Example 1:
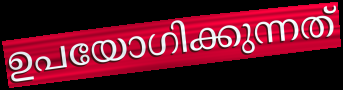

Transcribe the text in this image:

ഉപയോഗിക്കുന്നത്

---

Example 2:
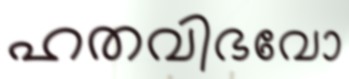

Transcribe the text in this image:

ഹതവിഭവോ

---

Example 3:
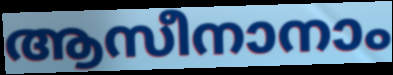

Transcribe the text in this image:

ആസീനാനാം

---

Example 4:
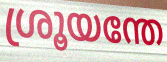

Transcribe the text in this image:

ശ്രൂയന്തേ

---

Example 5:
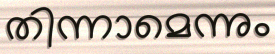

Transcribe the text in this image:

തിന്നാമെന്നും